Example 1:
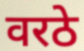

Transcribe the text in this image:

वरठे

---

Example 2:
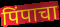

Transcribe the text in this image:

पिंपाचा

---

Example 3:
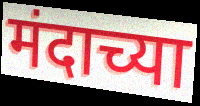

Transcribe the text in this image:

मंदाच्या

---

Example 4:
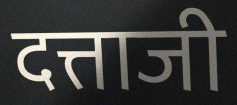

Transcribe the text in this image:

दत्ताजी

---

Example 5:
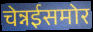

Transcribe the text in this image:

चेन्नईसमोर